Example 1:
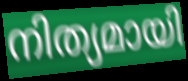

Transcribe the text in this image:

നിത്യമായി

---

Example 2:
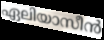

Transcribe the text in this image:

ഏലിയാസീൻ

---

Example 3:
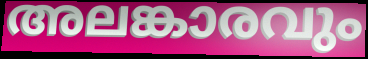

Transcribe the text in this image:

അലങ്കാരവും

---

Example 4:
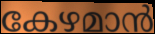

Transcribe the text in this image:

കേഴമാൻ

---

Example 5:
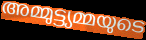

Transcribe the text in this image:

അമ്മുട്ട്യമ്മയുടെ